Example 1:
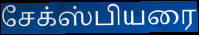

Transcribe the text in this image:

சேக்ஸ்பியரை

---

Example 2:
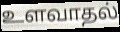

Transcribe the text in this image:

உளவாதல்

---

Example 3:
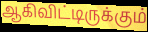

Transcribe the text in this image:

ஆகிவிட்டிருக்கும்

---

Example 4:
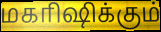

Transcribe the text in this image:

மகரிஷிக்கும்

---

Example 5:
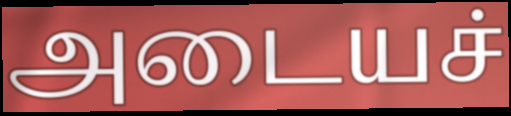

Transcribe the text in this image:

அடையச்